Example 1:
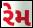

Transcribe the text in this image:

રેમ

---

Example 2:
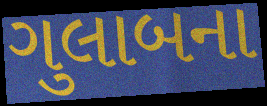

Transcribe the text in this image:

ગુલાબના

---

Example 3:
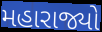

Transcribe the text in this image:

મહારાજ્યો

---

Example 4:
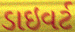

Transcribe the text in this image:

ડાઇવર્ટ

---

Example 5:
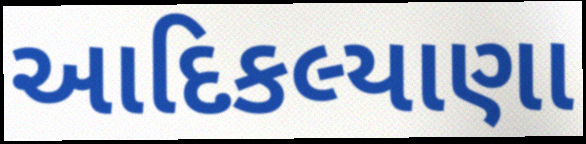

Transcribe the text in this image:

આદિકલ્યાણા